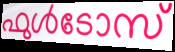
ഫുൾടോസ്